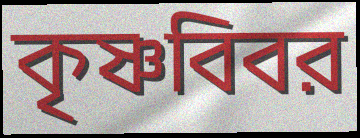
কৃষ্ণবিবর